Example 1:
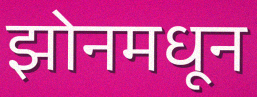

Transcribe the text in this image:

झोनमधून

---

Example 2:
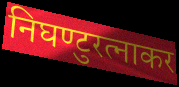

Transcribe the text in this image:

निघण्टुरत्नाकर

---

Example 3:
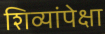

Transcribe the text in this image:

शिव्यांपेक्षा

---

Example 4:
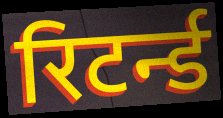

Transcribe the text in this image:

रिटर्न्ड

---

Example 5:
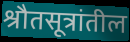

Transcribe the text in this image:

श्रौतसूत्रांतील